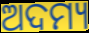
ଅଦମ୍ୟ